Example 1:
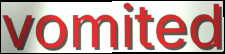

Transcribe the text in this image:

vomited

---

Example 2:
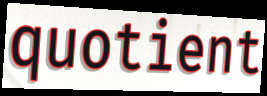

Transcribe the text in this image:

quotient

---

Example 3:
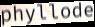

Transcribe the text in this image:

phyllode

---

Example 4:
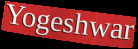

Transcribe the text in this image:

Yogeshwar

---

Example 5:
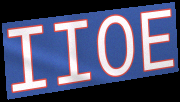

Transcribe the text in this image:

IIOE